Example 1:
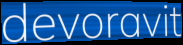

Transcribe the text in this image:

devoravit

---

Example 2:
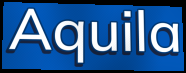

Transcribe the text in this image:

Aquila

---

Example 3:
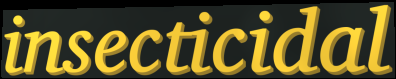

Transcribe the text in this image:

insecticidal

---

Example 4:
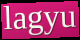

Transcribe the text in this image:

lagyu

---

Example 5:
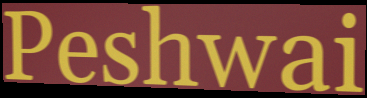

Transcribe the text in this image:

Peshwai